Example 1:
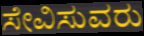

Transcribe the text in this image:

ಸೇವಿಸುವರು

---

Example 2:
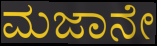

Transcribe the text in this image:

ಮಜಾನೇ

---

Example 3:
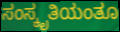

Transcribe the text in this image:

ಸಂಸ್ಕೃತಿಯಂತೂ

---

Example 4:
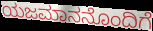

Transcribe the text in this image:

ಯಜಮಾನನೊಂದಿಗೆ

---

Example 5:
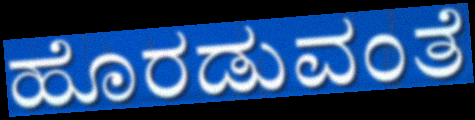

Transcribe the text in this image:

ಹೊರಡುವಂತೆ